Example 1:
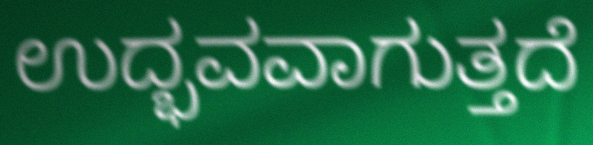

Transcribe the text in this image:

ಉದ್ಭವವಾಗುತ್ತದೆ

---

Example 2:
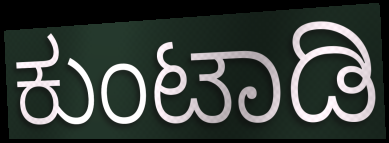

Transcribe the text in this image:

ಕುಂಟಾಡಿ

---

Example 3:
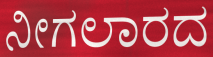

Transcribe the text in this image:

ನೀಗಲಾರದ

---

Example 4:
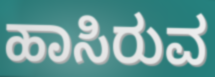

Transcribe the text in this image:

ಹಾಸಿರುವ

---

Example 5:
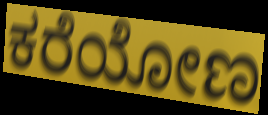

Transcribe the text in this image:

ಕರೆಯೋಣ